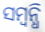
ସମ୍ବନ୍ଧି